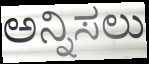
ಅನ್ನಿಸಲು